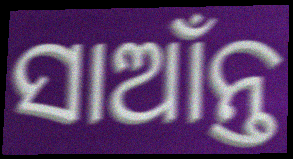
ସାଆଁନ୍ତ